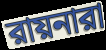
রায়নারা